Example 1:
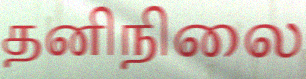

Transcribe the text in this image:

தனிநிலை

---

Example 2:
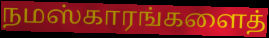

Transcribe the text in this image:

நமஸ்காரங்களைத்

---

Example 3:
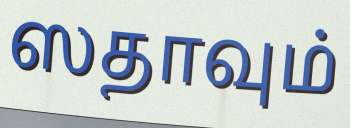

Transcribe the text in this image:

ஸதாவும்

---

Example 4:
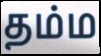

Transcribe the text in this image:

தம்ம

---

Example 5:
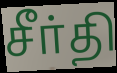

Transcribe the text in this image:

சீர்தி